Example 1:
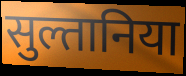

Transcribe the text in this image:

सुल्तानिया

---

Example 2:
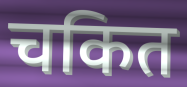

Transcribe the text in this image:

चकित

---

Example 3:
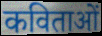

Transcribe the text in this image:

कविताओं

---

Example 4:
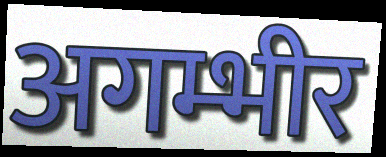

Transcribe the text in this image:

अगम्भीर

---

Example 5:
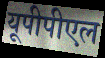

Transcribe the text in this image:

यूपीपीएल